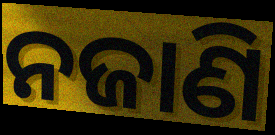
ନଜାଣି